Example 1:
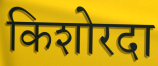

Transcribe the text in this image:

किशोरदा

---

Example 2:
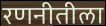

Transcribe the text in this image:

रणनीतीला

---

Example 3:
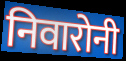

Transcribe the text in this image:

निवारोनी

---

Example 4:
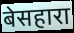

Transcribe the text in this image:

बेसहारा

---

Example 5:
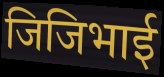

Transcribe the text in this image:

जिजिभाई